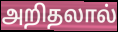
அறிதலால்